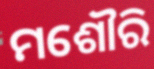
ମଶୌରି